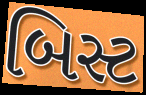
બિસ્ટ